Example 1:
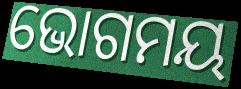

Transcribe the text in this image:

ଭୋଗମୟ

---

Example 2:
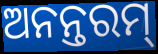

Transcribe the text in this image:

ଅନନ୍ତରମ୍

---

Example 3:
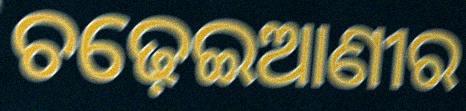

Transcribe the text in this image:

ଚଢ଼େଇଆଣୀର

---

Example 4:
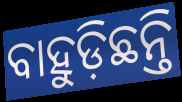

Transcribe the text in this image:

ବାହୁଡ଼ିଛନ୍ତି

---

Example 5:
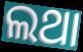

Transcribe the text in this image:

ଲଥା